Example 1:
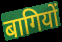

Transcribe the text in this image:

बागियों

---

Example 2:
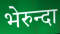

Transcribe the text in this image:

भेरुन्दा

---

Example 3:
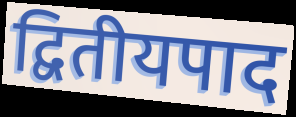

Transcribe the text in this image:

द्वितीयपाद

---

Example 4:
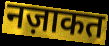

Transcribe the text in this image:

नज़ाकत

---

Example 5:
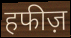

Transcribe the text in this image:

हफीज़